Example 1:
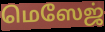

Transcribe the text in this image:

மெஸேஜ்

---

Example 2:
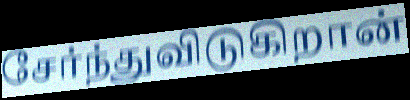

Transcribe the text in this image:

சேர்ந்துவிடுகிறான்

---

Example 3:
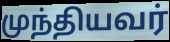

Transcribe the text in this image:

முந்தியவர்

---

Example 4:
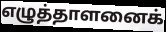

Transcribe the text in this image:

எழுத்தாளனைக்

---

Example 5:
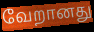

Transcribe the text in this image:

வேறானது